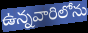
ఉన్నవారిలోను